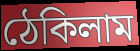
ঠেকিলাম